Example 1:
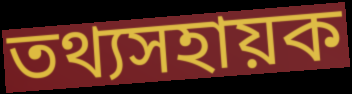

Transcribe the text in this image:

তথ্যসহায়ক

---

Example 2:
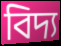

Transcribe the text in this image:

বিদ্য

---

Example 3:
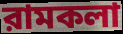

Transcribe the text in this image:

রামকলা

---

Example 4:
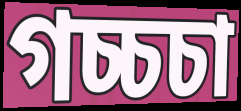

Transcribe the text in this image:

গচ্চচা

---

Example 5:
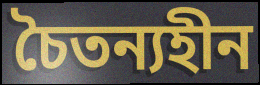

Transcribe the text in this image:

চৈতন্যহীন